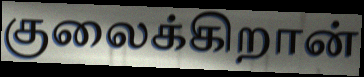
குலைக்கிறான்